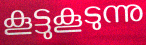
കൂട്ടുകൂടുന്നു